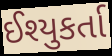
ઈશ્યુકર્તા